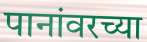
पानांवरच्या